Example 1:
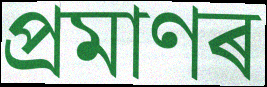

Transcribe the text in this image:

প্ৰমাণৰ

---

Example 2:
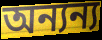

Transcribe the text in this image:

অন্যন্য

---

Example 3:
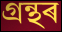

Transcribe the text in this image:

গ্ৰন্থৰ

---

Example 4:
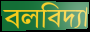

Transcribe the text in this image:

বলবিদ্যা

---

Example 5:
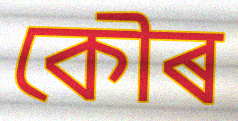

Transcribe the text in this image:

কৌৰ